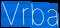
Vrba